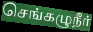
செங்கழுநீர்